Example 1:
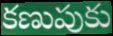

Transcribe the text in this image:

కణుపుకు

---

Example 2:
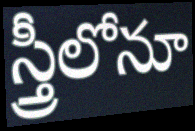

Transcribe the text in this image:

స్త్రీలోనూ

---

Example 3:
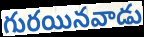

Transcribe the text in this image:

గురయినవాడు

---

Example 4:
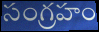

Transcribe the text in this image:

సంగ్రహం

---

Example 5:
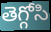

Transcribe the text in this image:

తెగ్గోసి